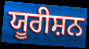
ਯੂਰੀਸ਼ਨ